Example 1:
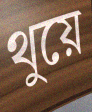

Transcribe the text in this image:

থুয়ে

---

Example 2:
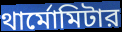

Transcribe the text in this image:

থার্মোমিটার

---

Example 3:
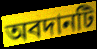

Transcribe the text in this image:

অবদানটি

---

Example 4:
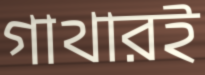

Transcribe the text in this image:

গাথারই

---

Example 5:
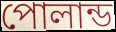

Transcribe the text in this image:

পোলান্ড